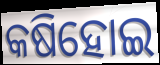
କଷିହୋଇ